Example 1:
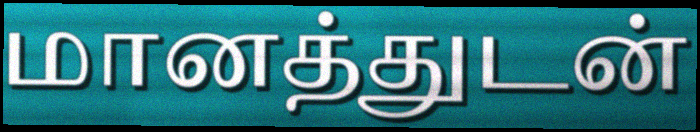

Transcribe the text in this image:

மானத்துடன்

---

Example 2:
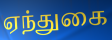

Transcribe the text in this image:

ஏந்துகை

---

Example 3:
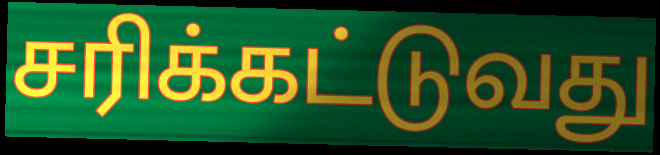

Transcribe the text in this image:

சரிக்கட்டுவது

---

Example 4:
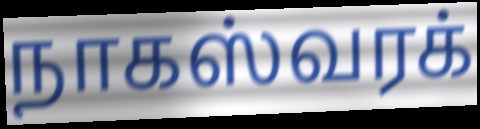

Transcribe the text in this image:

நாகஸ்வரக்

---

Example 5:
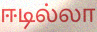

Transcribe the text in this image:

ஈடில்லா